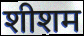
शीशम